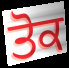
ਤੋਕ